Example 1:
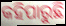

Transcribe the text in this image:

କହିପାରୁଛି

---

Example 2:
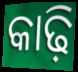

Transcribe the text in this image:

କାଢ଼ି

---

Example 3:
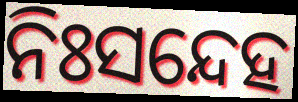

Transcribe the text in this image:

ନିଃସନ୍ଦେହ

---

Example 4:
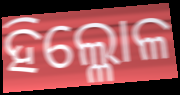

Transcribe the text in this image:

ହିଲ୍ଳୋଳ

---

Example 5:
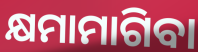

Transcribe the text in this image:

କ୍ଷମାମାଗିବା